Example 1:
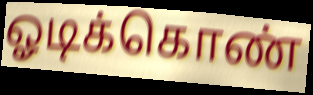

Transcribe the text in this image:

ஓடிக்கொண்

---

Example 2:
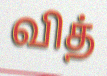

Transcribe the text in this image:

வித்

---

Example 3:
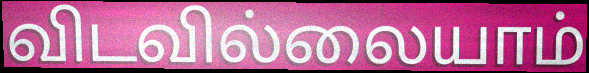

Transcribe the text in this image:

விடவில்லையாம்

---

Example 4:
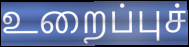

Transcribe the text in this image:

உறைப்புச்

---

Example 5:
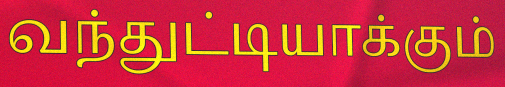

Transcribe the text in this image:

வந்துட்டியாக்கும்